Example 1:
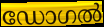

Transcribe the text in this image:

ഡോഗൽ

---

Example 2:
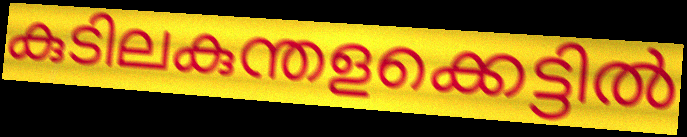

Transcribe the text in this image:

കുടിലകുന്തളക്കെട്ടിൽ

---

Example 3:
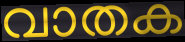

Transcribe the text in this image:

വാതക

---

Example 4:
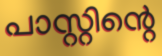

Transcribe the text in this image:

പാസ്റ്റിന്റെ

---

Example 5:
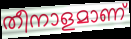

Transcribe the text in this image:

തീനാളമാണ്